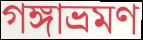
গঙ্গাভ্রমণ